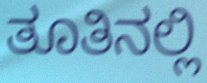
ತೂತಿನಲ್ಲಿ